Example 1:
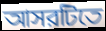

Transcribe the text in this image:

আসরটিতে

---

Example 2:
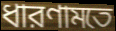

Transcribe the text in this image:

ধারণামতে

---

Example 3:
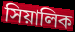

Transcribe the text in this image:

সিয়ালিক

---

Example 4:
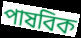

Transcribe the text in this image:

পাষবিক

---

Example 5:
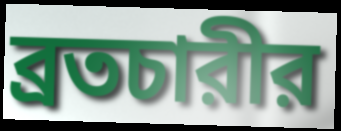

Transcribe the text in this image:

ব্রতচারীর